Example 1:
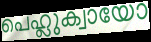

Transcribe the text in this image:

പെഹ്ലുക്വായോ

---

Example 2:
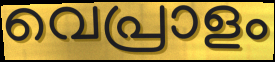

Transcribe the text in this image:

വെപ്രാളം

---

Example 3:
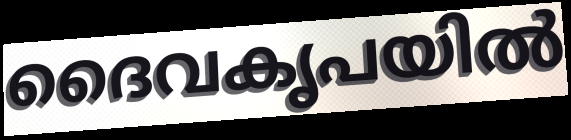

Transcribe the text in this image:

ദൈവകൃപയിൽ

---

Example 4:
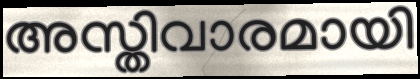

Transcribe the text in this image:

അസ്തിവാരമായി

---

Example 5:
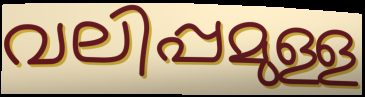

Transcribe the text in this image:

വലിപ്പമുള്ള